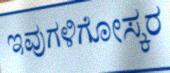
ಇವುಗಳಿಗೋಸ್ಕರ